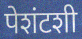
पेशंटशी